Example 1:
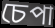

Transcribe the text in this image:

চেপা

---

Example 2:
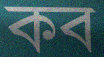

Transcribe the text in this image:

কব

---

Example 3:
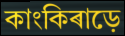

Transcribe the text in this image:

কাংকিৰাড়ে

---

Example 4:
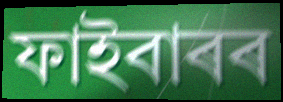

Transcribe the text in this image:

ফাইবাৰৰ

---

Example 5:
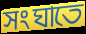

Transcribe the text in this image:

সংঘাতে